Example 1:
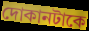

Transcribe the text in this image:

দোকানটাকে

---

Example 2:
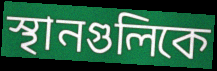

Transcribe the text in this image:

স্থানগুলিকে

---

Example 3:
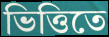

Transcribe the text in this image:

ভিত্তিতে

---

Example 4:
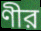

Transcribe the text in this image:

ণীর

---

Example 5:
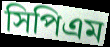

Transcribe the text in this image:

সিপিএম